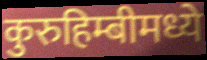
कुरुहिम्बीमध्ये